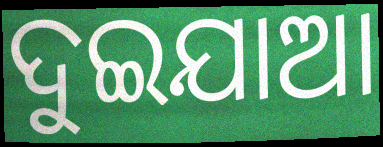
ଦୁଇଯାଆ